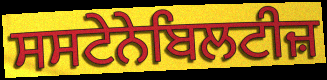
ਸਸਟੇਨੇਬਿਲਟੀਜ਼